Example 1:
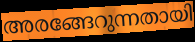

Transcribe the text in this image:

അരങ്ങേറുന്നതായി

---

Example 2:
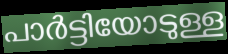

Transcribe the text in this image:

പാർട്ടിയോടുള്ള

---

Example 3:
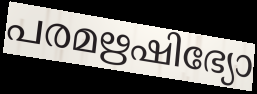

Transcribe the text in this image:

പരമഋഷിഭ്യോ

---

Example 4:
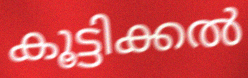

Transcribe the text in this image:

കൂട്ടിക്കൽ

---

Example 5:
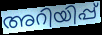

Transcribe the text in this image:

അറിയിപ്പ്